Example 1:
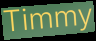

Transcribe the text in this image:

Timmy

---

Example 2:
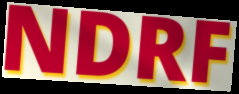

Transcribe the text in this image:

NDRF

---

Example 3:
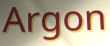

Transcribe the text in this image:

Argon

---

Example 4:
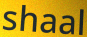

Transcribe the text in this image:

shaal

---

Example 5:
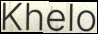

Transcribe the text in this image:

Khelo